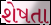
શેષતા